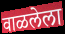
वाळलेला